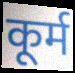
कूर्म